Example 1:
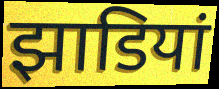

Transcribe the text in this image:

झाडियां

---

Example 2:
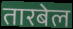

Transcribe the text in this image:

तारबेल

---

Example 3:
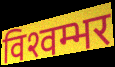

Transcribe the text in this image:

विश्वम्भर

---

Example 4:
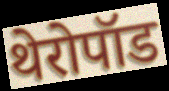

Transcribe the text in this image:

थेरोपॉड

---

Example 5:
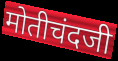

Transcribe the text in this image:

मोतीचंदजी